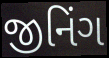
જીનિંગ